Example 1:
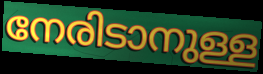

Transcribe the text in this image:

നേരിടാനുള്ള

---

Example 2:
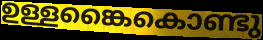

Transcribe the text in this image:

ഉള്ളങ്കൈകൊണ്ടു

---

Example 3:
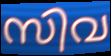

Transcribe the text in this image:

സിവ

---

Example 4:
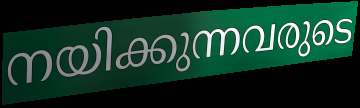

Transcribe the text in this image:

നയിക്കുന്നവരുടെ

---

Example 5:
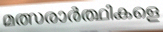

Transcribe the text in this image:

മത്സരാർത്ഥികളെ